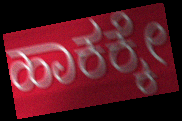
ಹಾಕಕ್ಕೇ